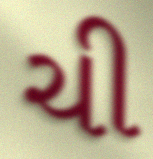
ચી